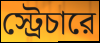
স্ট্রেচারে